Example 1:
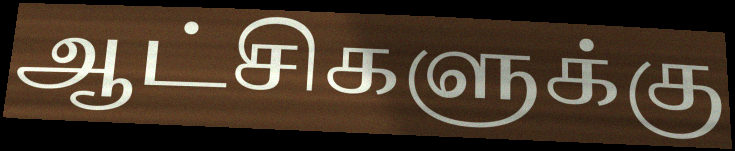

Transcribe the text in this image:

ஆட்சிகளுக்கு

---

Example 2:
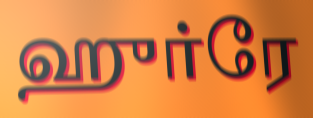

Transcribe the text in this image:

ஹுர்ரே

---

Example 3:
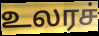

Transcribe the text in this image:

உலரச்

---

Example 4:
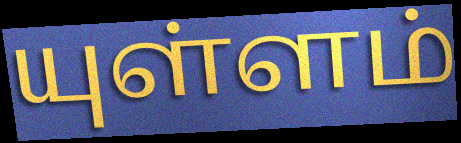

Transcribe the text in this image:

யுள்ளம்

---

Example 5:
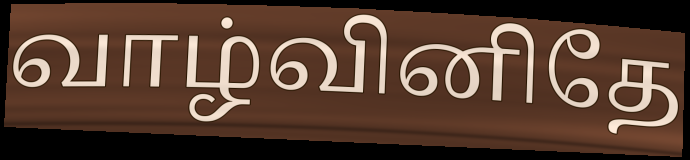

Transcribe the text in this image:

வாழ்வினிதே